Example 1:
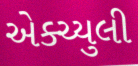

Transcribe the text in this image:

એક્ચ્યુલી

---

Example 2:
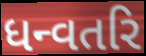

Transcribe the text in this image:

ધન્વતરિ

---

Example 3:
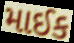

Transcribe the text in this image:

માઈક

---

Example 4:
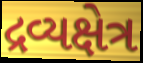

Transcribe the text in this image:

દ્રવ્યક્ષેત્ર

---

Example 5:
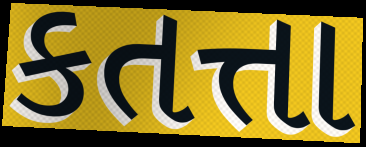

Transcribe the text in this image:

કતત્તા